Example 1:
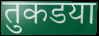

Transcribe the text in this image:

तुकडया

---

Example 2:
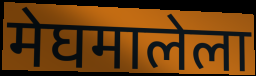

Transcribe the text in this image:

मेघमालेला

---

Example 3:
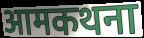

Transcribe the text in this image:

आमकथना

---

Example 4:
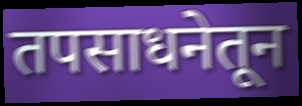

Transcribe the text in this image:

तपसाधनेतून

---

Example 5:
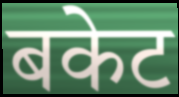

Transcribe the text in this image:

बकेट